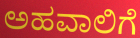
ಅಹವಾಲಿಗೆ